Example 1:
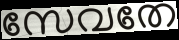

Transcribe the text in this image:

സേവതേ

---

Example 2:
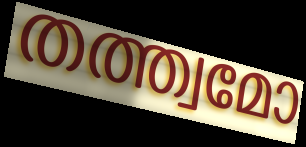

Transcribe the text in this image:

തത്ത്വമോ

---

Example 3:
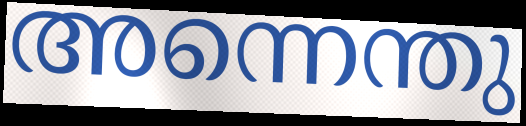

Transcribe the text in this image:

അന്നെന്തു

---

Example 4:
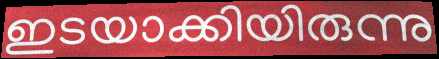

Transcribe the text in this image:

ഇടയാക്കിയിരുന്നു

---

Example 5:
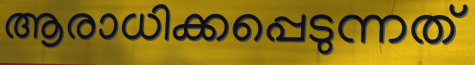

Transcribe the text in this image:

ആരാധിക്കപ്പെടുന്നത്